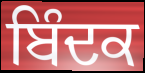
ਬਿੰਦਕ